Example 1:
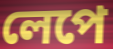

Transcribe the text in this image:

লেপে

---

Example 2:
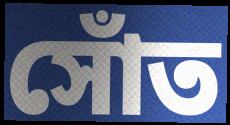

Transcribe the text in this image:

সোঁত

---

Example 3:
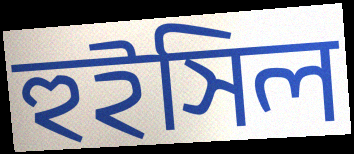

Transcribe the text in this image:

হুইসিল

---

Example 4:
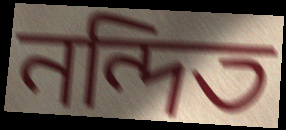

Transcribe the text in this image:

নন্দিত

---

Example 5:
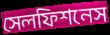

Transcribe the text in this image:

সেলফিশনেস